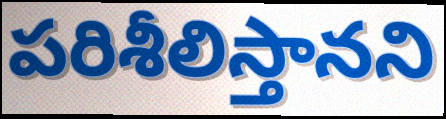
పరిశీలిస్తానని